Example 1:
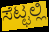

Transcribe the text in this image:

ಸೆಟ್ಟಲ್ಲಿ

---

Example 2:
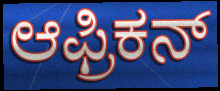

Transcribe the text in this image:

ಆಫ್ರಿಕನ್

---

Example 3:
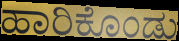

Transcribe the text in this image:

ಹಾರಿಕೊಂಡು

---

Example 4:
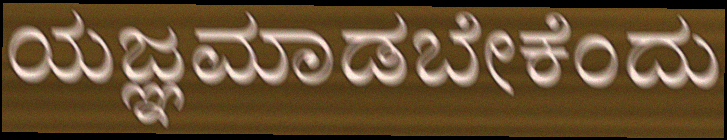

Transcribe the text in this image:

ಯಜ್ಞಮಾಡಬೇಕೆಂದು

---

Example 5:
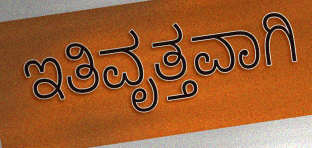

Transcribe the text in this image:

ಇತಿವೃತ್ತವಾಗಿ